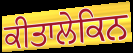
ਕੀਤਾਲੇਕਿਨ